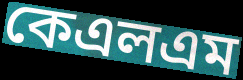
কেএলএম